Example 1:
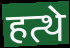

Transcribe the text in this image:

हत्थे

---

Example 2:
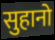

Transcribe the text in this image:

सुहानो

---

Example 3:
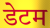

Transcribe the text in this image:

डेटम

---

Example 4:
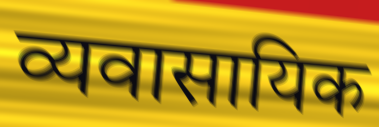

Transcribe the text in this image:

व्यवासायिक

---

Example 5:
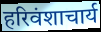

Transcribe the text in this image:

हरिवंशाचार्य